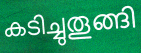
കടിച്ചുതൂങ്ങി